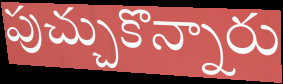
పుచ్చుకొన్నారు